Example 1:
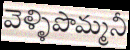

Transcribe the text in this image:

వెళ్ళిపొమ్మనీ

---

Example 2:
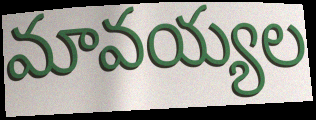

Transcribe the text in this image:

మావయ్యల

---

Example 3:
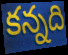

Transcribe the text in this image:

కన్నది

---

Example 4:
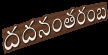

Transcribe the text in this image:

దదనంతరంబ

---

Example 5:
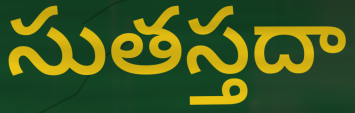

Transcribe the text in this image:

సుతస్తదా